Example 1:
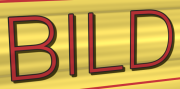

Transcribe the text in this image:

BILD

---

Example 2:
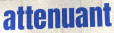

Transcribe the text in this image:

attenuant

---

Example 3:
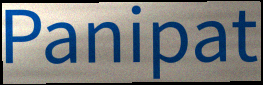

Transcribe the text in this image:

Panipat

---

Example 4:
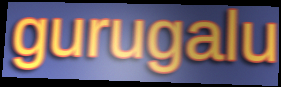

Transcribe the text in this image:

gurugalu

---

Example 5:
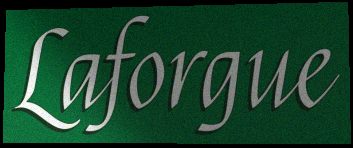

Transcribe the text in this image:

Laforgue